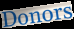
Donors